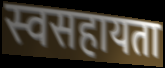
स्वसहायता